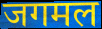
जगमल